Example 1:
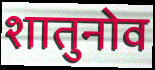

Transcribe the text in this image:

शातुनोव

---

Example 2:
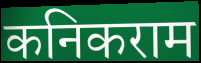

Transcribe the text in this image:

कनिकराम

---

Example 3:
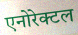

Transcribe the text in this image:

एनोरेक्टल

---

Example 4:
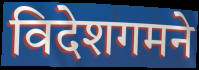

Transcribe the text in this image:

विदेशगमने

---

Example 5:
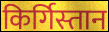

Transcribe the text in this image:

किर्गिस्‍तान